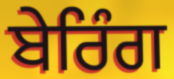
ਬੇਰਿੰਗ